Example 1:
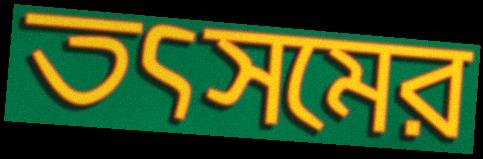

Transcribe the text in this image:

তৎসমের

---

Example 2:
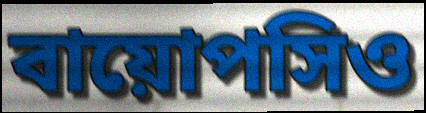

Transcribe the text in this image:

বায়োপসিও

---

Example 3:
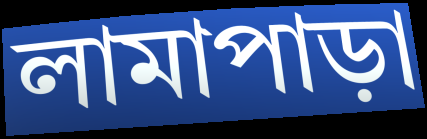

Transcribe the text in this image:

লামাপাড়া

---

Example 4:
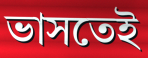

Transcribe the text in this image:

ভাসতেই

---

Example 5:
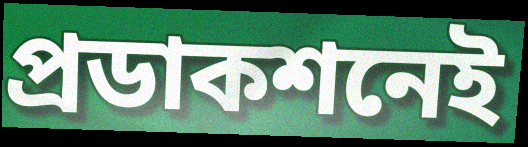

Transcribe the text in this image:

প্রডাকশনেই